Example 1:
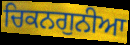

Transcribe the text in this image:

ਚਿਕਨਗੁਨੀਆ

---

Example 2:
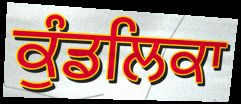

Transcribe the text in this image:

ਕੁੰਡਲਿਕਾ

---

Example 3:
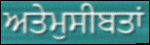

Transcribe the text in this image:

ਅਤੇਮੁਸੀਬਤਾਂ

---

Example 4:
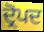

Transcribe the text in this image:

ਦ੍ਰੋਪਦ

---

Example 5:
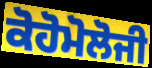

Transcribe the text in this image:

ਕੋਹੋਮੋਲੋਜੀ